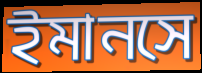
ইমানসে